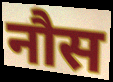
नौस